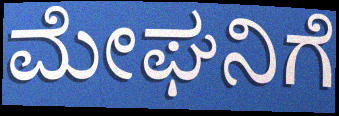
ಮೇಘನಿಗೆ